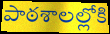
పాఠశాలల్లోకి